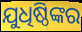
ଯୁଧିଷ୍ଠିଙ୍କର